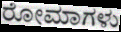
ರೋಮಾಗಳು